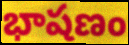
భాషణం